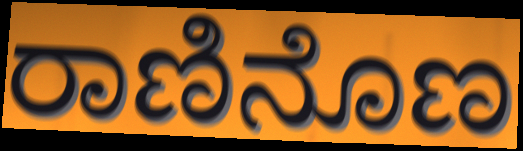
ರಾಣಿನೊಣ